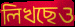
লিখছেও